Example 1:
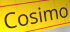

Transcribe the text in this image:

Cosimo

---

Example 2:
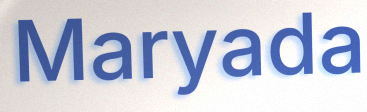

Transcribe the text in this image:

Maryada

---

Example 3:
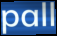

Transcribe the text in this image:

pall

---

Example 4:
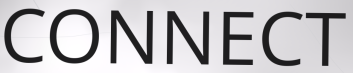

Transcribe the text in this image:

CONNECT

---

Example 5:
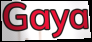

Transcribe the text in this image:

Gaya